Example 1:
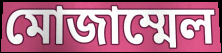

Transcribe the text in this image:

মোজাম্মেল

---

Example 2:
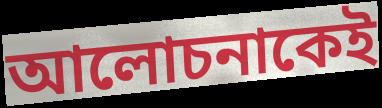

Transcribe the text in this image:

আলোচনাকেই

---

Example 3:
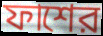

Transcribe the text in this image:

ফাশের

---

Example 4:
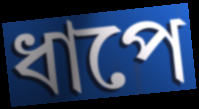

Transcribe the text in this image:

ধাপে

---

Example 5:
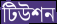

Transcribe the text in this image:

টিউশন